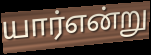
யார்என்று